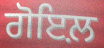
ਗੋਇਲ਼